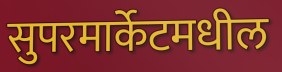
सुपरमार्केटमधील